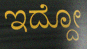
ಇದ್ದೋ